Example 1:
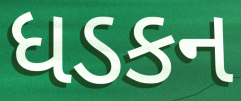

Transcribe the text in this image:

ધડકન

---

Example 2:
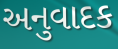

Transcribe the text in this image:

અનુવાદક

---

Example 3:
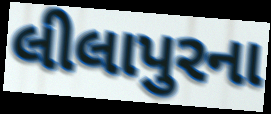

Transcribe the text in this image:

લીલાપુરના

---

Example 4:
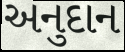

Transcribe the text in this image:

અનુદાન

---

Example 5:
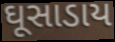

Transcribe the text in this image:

ઘૂસાડાય